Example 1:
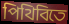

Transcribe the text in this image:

পিথিবিতে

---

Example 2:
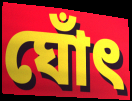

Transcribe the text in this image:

ঘোঁৎ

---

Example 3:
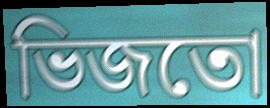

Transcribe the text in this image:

ভিজতো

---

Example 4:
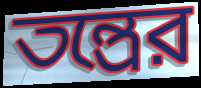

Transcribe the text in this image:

তন্ত্রের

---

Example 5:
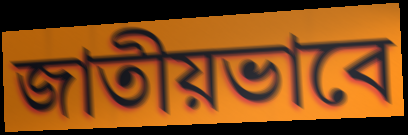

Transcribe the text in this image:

জাতীয়ভাবে